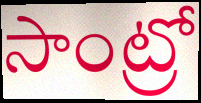
సాంట్రో